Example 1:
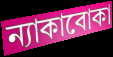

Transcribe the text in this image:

ন্যাকাবোকা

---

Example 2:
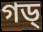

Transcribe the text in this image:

গড্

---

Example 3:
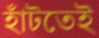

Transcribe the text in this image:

হাঁটতেই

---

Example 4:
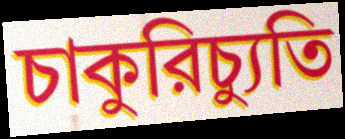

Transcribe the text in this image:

চাকুরিচ্যুতি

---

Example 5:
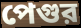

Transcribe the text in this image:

পেগুর